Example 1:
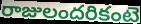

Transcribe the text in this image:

రాజులందరికంటె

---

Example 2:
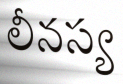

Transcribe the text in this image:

లీనస్య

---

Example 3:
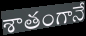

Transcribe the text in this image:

శాతంగానే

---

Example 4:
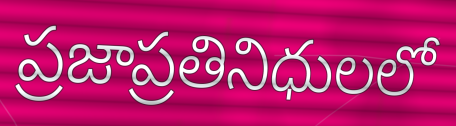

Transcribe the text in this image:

ప్రజాప్రతినిధులలో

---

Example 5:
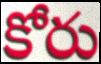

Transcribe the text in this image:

కోరు